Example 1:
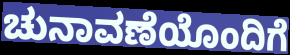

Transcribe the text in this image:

ಚುನಾವಣೆಯೊಂದಿಗೆ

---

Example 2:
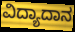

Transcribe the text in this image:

ವಿದ್ಯಾದಾನ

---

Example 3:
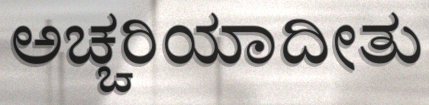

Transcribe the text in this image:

ಅಚ್ಚರಿಯಾದೀತು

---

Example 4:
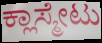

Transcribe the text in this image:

ಕ್ಲಾಸ್ಮೇಟು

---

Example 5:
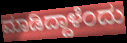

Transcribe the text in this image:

ಮಾಡಿದ್ದಾಳೆಂದು